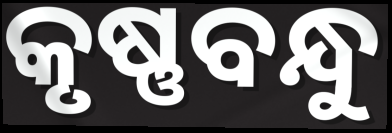
କୃଷ୍ଣବନ୍ଧୁ